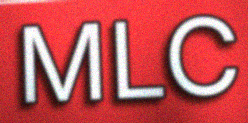
MLC